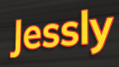
Jessly